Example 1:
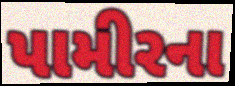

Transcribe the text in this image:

પામીરના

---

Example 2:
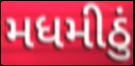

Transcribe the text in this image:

મધમીઠું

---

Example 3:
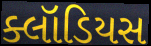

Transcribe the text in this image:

ક્લૉડિયસ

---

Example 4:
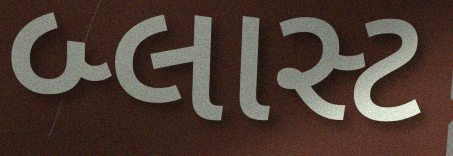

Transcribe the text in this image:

બ્લાસ્ટ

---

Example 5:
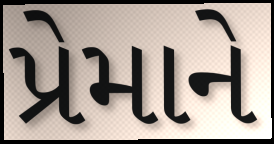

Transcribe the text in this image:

પ્રેમાને